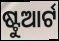
ଷ୍ଟୁଆର୍ଟ